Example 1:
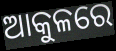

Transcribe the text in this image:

ଆକୁଳରେ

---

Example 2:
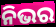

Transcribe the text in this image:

ନିଭର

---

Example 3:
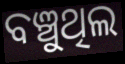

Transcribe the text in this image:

ବଞ୍ଚୁଥିଲ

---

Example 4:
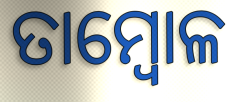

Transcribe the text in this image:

ତାମ୍ବୋଳ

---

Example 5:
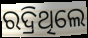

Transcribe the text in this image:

ରଦ୍ରିଥିଲେ